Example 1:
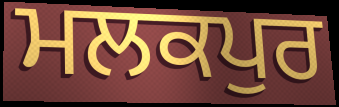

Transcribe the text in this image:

ਮਲਕਪੁਰ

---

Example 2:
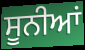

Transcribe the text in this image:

ਸੂਨੀਆਂ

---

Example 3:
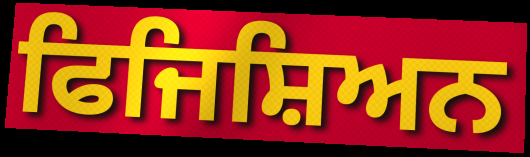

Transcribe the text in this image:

ਫਿਜਿਸ਼ਿਅਨ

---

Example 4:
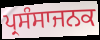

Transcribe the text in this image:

ਪ੍ਰਸੰਸਾਜਨਕ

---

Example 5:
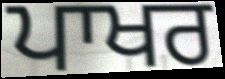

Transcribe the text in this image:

ਪਾਖਰ